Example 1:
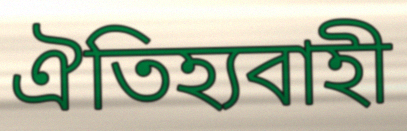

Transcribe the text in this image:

ঐতিহ্যবাহী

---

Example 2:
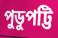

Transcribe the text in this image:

পুডুপট্টি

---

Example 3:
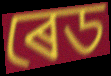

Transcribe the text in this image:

ৰেড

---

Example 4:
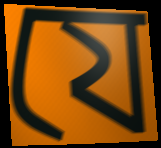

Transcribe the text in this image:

যে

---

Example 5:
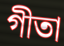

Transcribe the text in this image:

গীতা